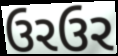
ઉરઉર